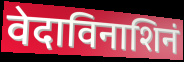
वेदाविनाशिनं